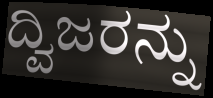
ದ್ವಿಜರನ್ನು